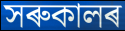
সৰুকালৰ